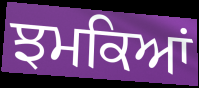
ਝਮਕਿਆਂ